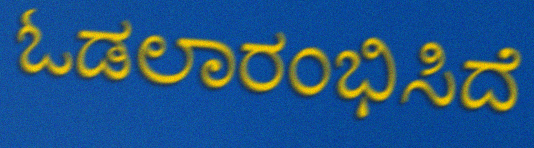
ಓಡಲಾರಂಭಿಸಿದೆ